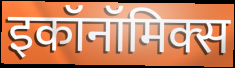
इकॉनॉमिक्‍स